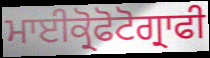
ਮਾਈਕ੍ਰੋਫੋਟੋਗ੍ਰਾਫੀ